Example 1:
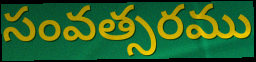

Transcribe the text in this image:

సంవత్సరము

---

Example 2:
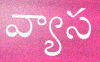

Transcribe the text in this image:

వ్యాస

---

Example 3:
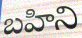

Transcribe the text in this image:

బహిని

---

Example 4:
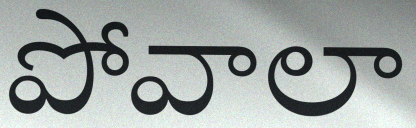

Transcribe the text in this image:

పోవాలా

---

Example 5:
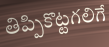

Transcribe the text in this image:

తిప్పికొట్టగలిగే